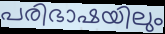
പരിഭാഷയിലും